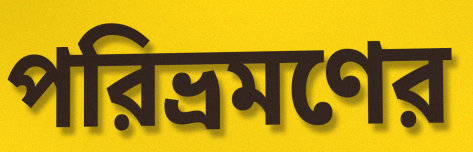
পরিভ্রমণের